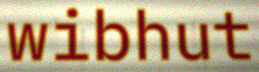
wibhut